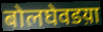
बोलघेवडय़ा